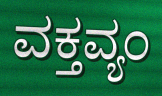
ವಕ್ತವ್ಯಂ